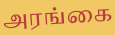
அரங்கை